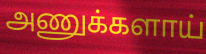
அணுக்களாய்